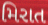
મિરાત